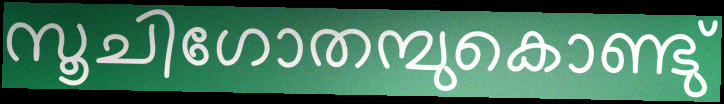
സൂചിഗോതമ്പുകൊണ്ടു്